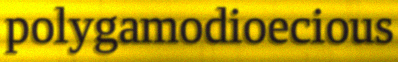
polygamodioecious